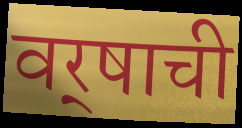
वर्षाची